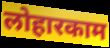
लोहारकाम